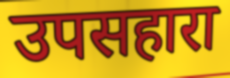
उपसहारा